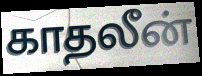
காதலீன்